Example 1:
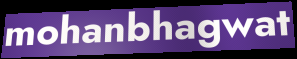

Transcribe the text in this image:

mohanbhagwat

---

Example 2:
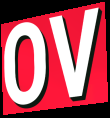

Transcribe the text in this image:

OV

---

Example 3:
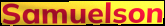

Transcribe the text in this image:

Samuelson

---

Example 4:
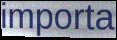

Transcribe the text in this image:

importa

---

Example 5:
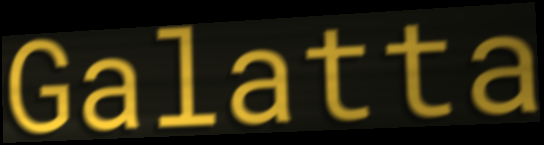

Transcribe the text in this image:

Galatta